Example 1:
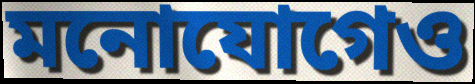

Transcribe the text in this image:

মনোযোগেও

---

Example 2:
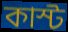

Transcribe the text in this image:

কাস্ট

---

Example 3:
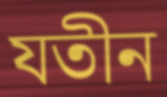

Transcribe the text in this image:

যতীন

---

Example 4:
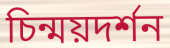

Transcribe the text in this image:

চিন্ময়দর্শন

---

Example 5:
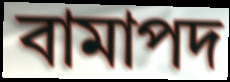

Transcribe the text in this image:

বামাপদ